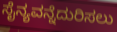
ಸೈನ್ಯವನ್ನೆದುರಿಸಲು